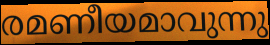
രമണീയമാവുന്നു